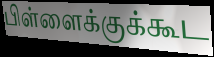
பிள்ளைக்குக்கூட